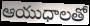
ఆయుధాలతో